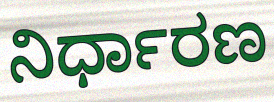
ನಿರ್ಧಾರಣ